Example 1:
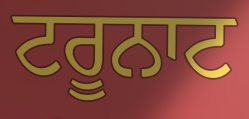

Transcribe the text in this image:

ਟਰੂਨਾਟ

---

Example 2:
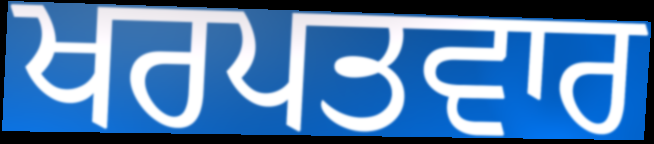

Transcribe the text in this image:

ਖਰਪਤਵਾਰ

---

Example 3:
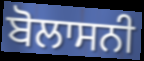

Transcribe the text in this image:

ਬੋਲਾਸਨੀ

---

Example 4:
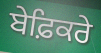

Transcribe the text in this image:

ਬੇਫ਼ਿਕਰੇ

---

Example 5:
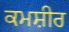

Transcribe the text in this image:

ਕਮਸ਼ੀਰ